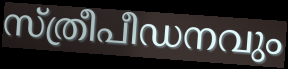
സ്ത്രീപീഡനവും